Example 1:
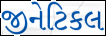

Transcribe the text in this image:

જીનેટિકલ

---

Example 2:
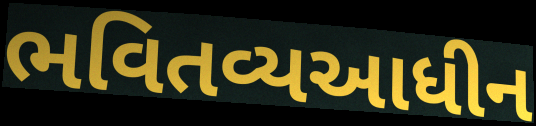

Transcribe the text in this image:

ભવિતવ્યઆધીન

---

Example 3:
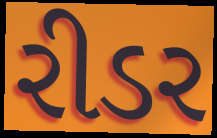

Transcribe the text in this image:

રીડર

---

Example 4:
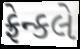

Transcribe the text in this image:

ફ્રેન્કલે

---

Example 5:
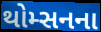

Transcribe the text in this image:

થોમ્સનના